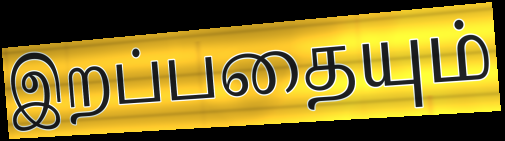
இறப்பதையும்